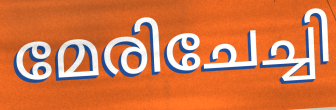
മേരിചേച്ചി